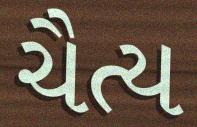
ચૈત્ય